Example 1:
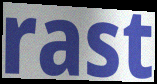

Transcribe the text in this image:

rast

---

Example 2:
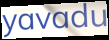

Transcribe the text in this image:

yavadu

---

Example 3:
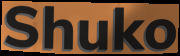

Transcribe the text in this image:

Shuko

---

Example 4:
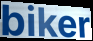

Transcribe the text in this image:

biker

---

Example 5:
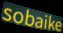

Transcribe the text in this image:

sobaike